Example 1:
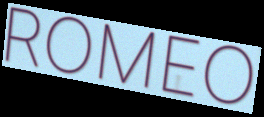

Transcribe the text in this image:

ROMEO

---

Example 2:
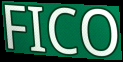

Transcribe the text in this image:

FICO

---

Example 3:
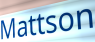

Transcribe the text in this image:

Mattson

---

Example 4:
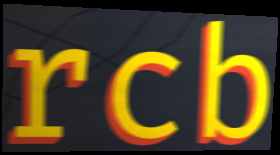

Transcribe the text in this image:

rcb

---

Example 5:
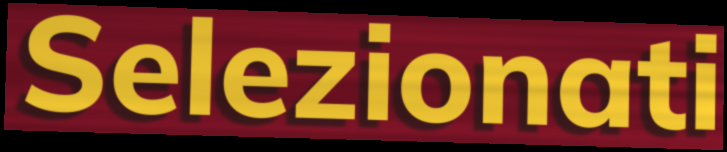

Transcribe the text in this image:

Selezionati